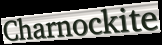
Charnockite